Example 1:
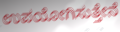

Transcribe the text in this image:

ಉಪಯೋಗಿಸುತ್ತೇನೆ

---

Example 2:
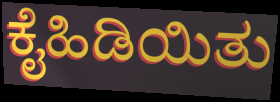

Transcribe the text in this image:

ಕೈಹಿಡಿಯಿತು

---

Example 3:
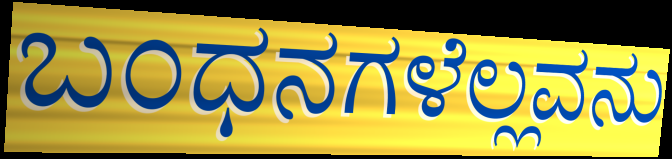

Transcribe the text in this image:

ಬಂಧನಗಳೆಲ್ಲವನು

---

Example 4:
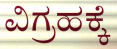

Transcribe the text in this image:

ವಿಗ್ರಹಕ್ಕೆ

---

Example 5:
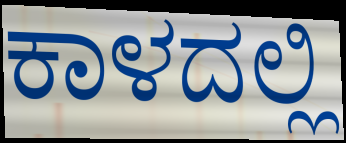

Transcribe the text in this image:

ಕಾಳದಲ್ಲಿ